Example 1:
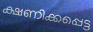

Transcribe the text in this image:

ക്ഷണിക്കപ്പെട്ട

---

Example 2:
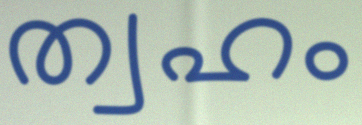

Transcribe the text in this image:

ത്വഹം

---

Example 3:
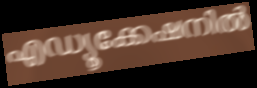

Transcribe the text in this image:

എഡ്യൂക്കേഷനിൽ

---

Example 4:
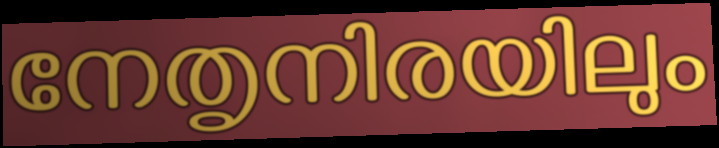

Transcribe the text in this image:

നേതൃനിരയിലും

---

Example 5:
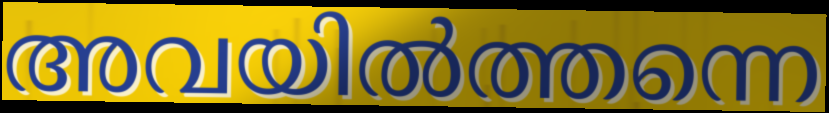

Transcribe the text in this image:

അവയിൽത്തന്നെ